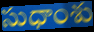
సుధాంశు